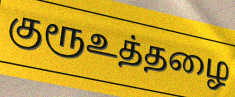
குரூஉத்தழை